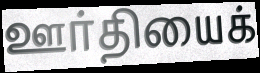
ஊர்தியைக்